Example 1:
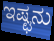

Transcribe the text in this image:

ಇಷ್ಟನು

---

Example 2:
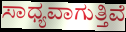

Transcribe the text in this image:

ಸಾಧ್ಯವಾಗುತ್ತಿವೆ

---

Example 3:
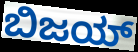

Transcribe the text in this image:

ಬಿಜಯ್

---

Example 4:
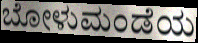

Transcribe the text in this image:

ಬೋಳುಮಂಡೆಯ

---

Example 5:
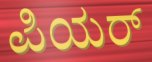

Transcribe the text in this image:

ಪಿಯರ್